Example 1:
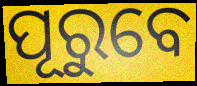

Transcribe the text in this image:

ପୂରୁବେ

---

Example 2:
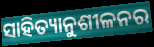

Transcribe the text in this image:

ସାହିତ୍ୟାନୁଶୀଳନର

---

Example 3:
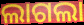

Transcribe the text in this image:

ଲାଗଲା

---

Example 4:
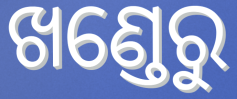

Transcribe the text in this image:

ଖଣ୍ଡେରୁ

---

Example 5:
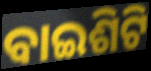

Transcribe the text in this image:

ବାଇଶିଟି